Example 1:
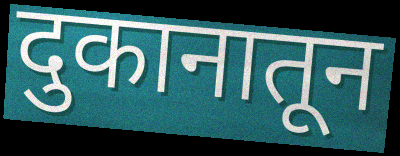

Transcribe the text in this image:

दुकानातून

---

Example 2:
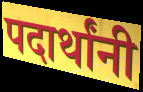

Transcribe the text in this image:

पदार्थांनी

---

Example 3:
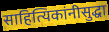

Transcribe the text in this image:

साहित्यिकांनीसुद्धा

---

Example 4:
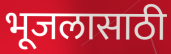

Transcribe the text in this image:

भूजलासाठी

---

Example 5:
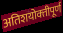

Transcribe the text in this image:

अतिशयोक्‍तीपूर्ण